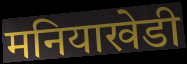
मनियाखेडी